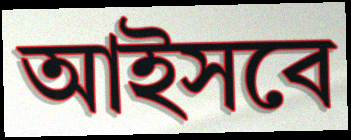
আইসবে